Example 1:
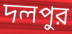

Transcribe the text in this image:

দলপুর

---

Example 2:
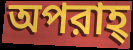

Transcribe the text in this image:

অপরাহ্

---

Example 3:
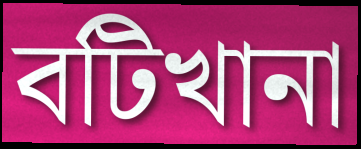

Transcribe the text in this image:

বটিখানা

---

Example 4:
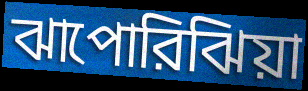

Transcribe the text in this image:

ঝাপোরিঝিয়া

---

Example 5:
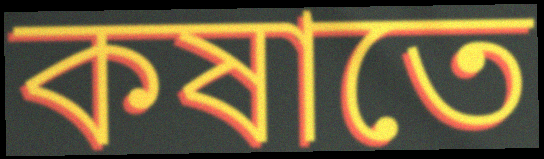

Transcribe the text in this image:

কষাতে